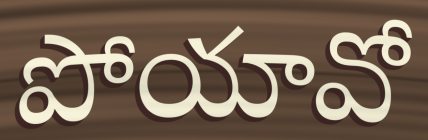
పోయావో